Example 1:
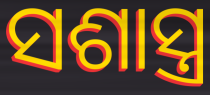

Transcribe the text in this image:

ସଶାସ୍ତ୍ର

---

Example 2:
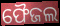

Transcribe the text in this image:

ଫୈଜଲ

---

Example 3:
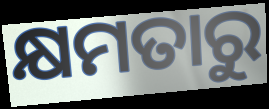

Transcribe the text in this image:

କ୍ଷମତାରୁ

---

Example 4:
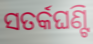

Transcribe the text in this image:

ସତର୍କଘଣ୍ଟି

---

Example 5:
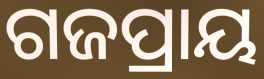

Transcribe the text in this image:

ଗଜପ୍ରାୟ